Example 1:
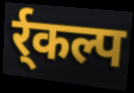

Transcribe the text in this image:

र्र्कल्प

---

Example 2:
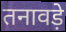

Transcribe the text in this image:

तनावड़े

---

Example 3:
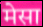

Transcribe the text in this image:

मेसा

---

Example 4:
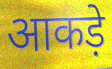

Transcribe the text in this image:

आकड़े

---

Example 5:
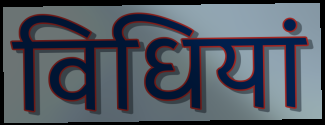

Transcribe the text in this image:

विधियां